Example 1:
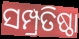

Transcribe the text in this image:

ସମ୍ପ୍ରତିଷ୍ଠା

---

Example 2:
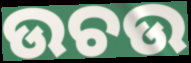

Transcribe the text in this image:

ଉଚଉ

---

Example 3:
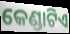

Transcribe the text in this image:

କେଣ୍ଡାଟିଏ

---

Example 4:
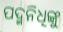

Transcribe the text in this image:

ପଦ୍ମନିଧିଙ୍କୁ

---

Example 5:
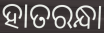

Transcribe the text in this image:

ହାତରନ୍ଧା